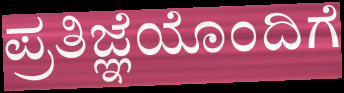
ಪ್ರತಿಜ್ಞೆಯೊಂದಿಗೆ